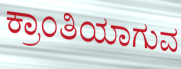
ಕ್ರಾಂತಿಯಾಗುವ